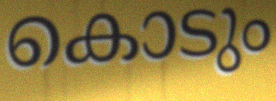
കൊടും